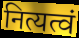
नित्यत्वं